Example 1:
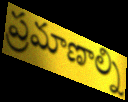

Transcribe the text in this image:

ప్రమాణాల్ని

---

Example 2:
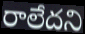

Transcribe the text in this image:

రాలేదని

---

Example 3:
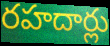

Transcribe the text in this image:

రహదార్లు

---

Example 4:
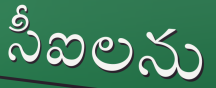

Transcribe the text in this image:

సీఐలను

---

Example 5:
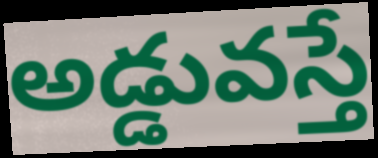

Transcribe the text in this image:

అడ్డువస్తే